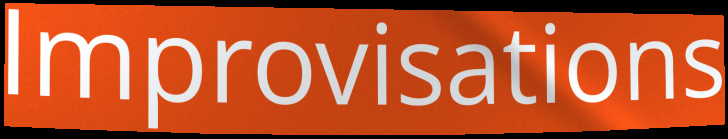
Improvisations